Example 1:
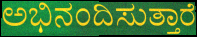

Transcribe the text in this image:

ಅಭಿನಂದಿಸುತ್ತಾರೆ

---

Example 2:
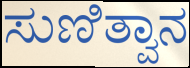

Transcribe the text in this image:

ಸುಣಿತ್ವಾನ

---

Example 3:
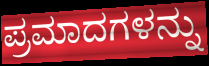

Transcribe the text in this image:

ಪ್ರಮಾದಗಳನ್ನು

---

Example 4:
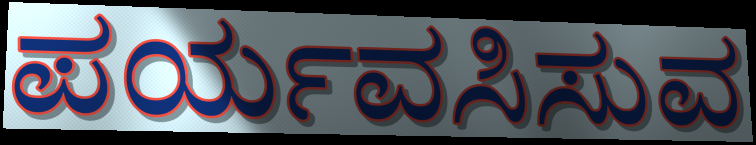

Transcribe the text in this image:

ಪರ್ಯವಸಿಸುವ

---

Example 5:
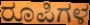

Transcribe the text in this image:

ರೂಪಿಗಳ